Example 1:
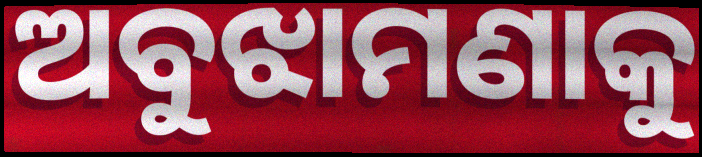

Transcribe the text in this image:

ଅବୁଝାମଣାକୁ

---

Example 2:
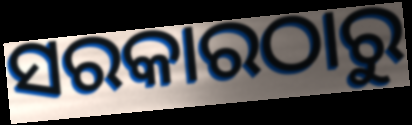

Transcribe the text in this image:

ସରକାରଠାରୁ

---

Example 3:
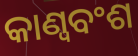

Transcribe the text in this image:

କାଣ୍ୱବଂଶ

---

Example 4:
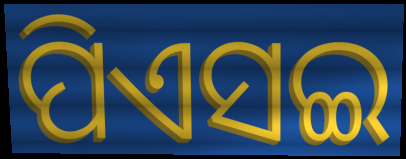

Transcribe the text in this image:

ପିଏସଇ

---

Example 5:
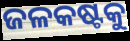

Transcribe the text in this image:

ଜଳକଷ୍ଟକୁ